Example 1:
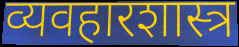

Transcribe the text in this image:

व्यवहारशास्त्र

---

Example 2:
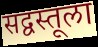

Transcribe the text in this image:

सद्वस्तूला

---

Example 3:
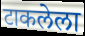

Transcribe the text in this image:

टाकलेला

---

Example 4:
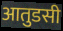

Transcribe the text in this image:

आतुडसी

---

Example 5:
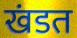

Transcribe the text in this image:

खंडत